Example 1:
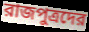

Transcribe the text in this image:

রাজপুত্রদের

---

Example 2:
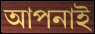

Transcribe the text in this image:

আপনাই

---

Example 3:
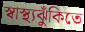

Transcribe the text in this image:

স্বাস্থ্যঝুঁকিতে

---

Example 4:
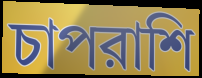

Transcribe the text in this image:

চাপরাশি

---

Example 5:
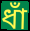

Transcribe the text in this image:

ধাঁ